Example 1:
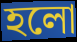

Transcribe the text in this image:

হলো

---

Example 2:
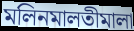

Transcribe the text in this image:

মলিনমালতীমালা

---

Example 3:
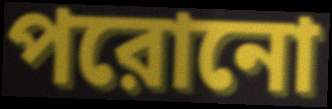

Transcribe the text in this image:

পরোনো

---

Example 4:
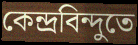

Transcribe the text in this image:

কেন্দ্রবিন্দুতে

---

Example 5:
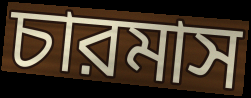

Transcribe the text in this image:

চারমাস